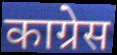
काग्रेस